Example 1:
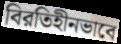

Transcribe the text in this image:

বিরতিহীনভাবে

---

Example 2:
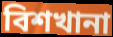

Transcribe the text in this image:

বিশখানা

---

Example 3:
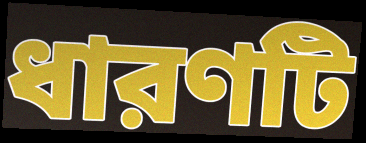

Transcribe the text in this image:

ধারণটি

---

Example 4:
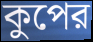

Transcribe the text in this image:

কুপের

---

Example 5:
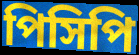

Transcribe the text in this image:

পিসিপি